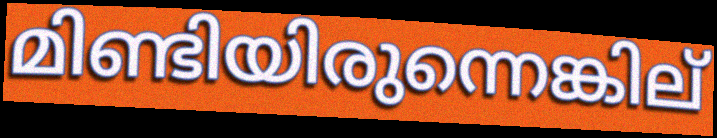
മിണ്ടിയിരുന്നെങ്കില്